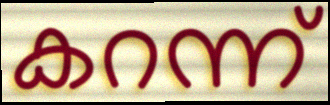
കറന്ന്